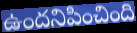
ఉందనిపించింది